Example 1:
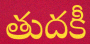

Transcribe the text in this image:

తుదకీ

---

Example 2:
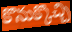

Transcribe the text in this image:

కొనుక్కొచ్చి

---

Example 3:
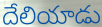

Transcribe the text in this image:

దేలియాడు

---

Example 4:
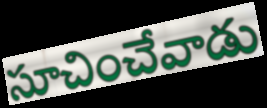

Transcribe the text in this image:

సూచించేవాడు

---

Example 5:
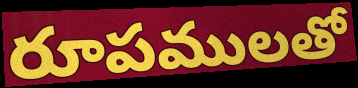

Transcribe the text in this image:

రూపములతో